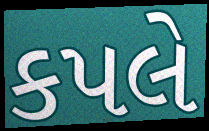
કપલે